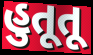
હુતૂતૂ